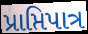
પ્રાપ્તિપાત્ર